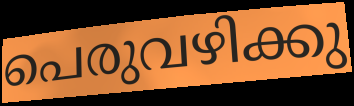
പെരുവഴിക്കു